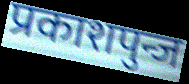
प्रकाशपुन्ज